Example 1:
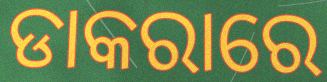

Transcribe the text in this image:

ଡାକରାରେ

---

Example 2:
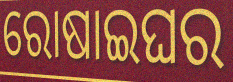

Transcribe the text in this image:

ରୋଷାଇଘର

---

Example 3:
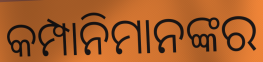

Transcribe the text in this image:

କମ୍ପାନିମାନଙ୍କର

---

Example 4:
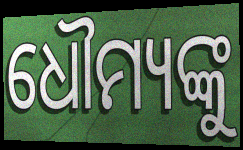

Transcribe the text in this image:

ଧୌମ୍ୟଙ୍କୁ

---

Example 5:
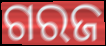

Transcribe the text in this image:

ଗରଜ